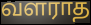
வளராத